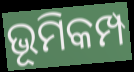
ଭୂମିକମ୍ପ